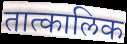
तात्कालिक